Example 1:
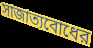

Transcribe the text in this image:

সাজাত্যবোধের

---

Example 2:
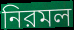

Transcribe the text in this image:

নিরমল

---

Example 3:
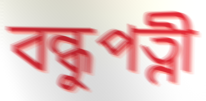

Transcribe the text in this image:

বন্ধুপত্নী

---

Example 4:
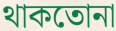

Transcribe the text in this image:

থাকতোনা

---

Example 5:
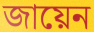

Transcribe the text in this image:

জায়েন